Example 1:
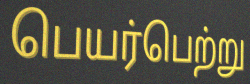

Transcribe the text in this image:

பெயர்பெற்று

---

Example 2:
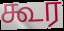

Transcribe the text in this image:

கூர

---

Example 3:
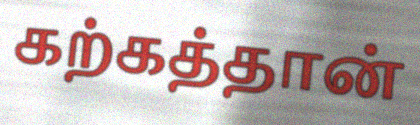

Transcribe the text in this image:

கற்கத்தான்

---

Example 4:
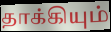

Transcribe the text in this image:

தாக்கியும்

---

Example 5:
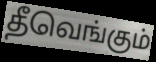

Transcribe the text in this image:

தீவெங்கும்